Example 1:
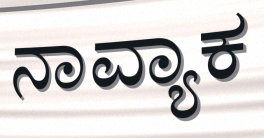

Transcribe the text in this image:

ನಾವ್ಯಾಕ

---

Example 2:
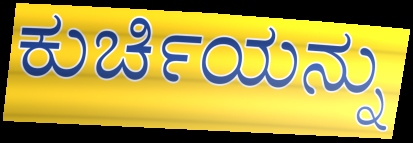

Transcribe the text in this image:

ಕುರ್ಚಿಯನ್ನು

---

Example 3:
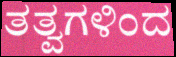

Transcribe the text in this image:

ತತ್ವಗಳಿಂದ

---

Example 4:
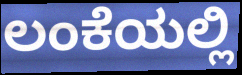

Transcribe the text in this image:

ಲಂಕೆಯಲ್ಲಿ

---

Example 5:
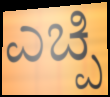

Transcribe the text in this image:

ಎಚ್ಪಿ